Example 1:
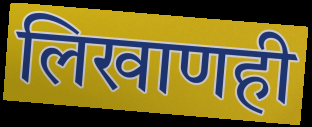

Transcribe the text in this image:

लिखाणही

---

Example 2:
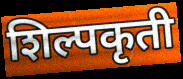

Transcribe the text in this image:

शिल्पकृती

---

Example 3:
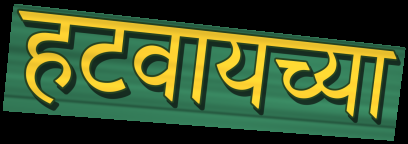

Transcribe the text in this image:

हटवायच्या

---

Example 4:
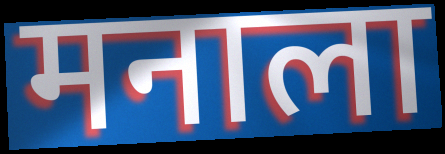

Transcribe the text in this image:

मनाला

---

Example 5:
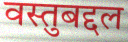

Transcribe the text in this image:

वस्तुबद्दल